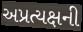
અપ્રત્યક્ષની